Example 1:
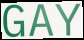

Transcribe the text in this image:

GAY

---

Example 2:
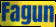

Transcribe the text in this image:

Fagun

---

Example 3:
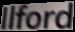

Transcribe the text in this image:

Ilford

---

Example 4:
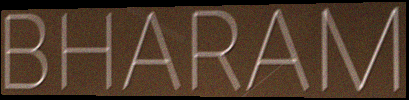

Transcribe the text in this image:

BHARAM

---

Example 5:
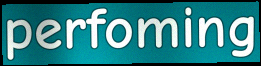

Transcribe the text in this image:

perfoming